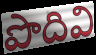
పొదివి